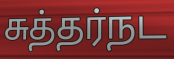
சுத்தர்நட